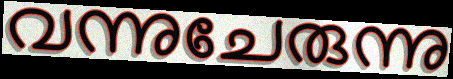
വന്നുചേരുന്നു